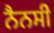
ਨੈਨਸੀ